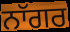
ਨਾੱਗਰ